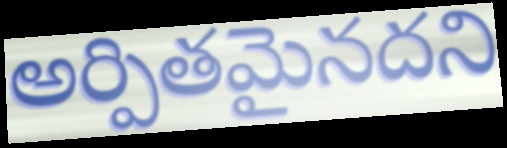
అర్పితమైనదని